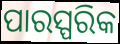
ପାରସ୍ପରିକ